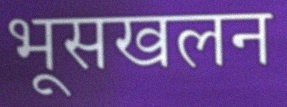
भूसखलन